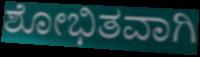
ಶೋಭಿತವಾಗಿ